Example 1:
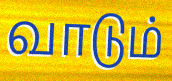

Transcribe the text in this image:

வாடும்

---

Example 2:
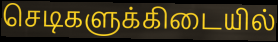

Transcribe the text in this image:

செடிகளுக்கிடையில்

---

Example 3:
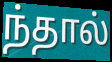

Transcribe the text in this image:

ந்தால்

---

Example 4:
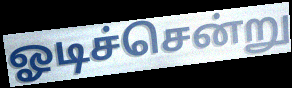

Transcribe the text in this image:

ஓடிச்சென்று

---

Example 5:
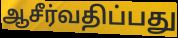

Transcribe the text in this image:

ஆசீர்வதிப்பது